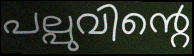
പല്പുവിന്റെ